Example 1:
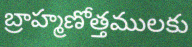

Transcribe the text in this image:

బ్రాహ్మణోత్తములకు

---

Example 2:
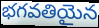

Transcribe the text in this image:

భగవతియైన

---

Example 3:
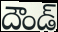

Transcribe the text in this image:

దౌండ్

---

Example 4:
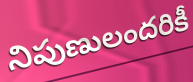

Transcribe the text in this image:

నిపుణులందరికీ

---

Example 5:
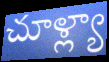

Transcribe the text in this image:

చూళ్ల్యా